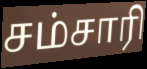
சம்சாரி